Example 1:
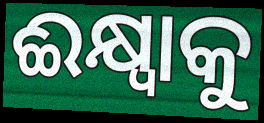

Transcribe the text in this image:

ଈକ୍ଷ୍ୱାକୁ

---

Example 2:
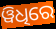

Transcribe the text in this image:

ୱିଧିରେ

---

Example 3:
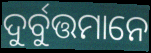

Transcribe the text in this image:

ଦୁର୍ବୁତ୍ତମାନେ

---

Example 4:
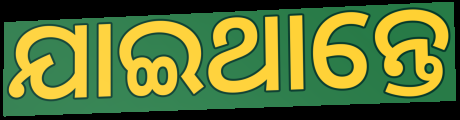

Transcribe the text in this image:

ଯାଇଥାନ୍ତେ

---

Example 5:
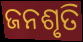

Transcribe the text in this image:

ଜନଶୃତି